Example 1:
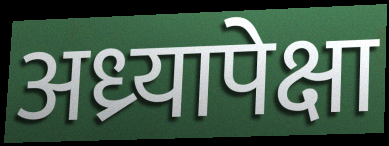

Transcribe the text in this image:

अध्र्यापेक्षा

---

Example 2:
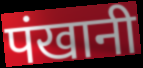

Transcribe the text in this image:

पंखानी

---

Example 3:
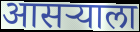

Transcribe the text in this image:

आसऱ्याला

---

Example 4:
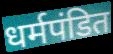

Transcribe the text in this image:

धर्मपंडित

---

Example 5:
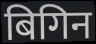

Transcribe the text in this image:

बिगिन